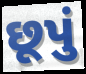
છૂપું